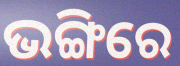
ଭଙ୍ଗିରେ